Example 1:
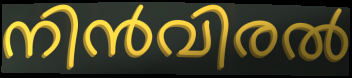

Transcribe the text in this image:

നിൻവിരൽ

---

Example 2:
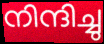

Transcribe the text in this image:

നിന്ദിച്ചു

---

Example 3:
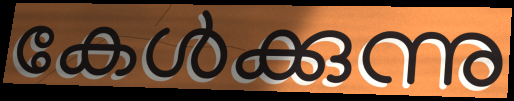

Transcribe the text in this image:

കേൾക്കുന്നു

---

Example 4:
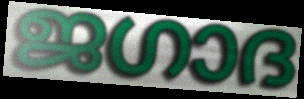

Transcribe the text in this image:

ജഗാദ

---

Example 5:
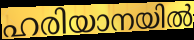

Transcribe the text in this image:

ഹരിയാനയിൽ